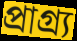
প্রাগ্র্য